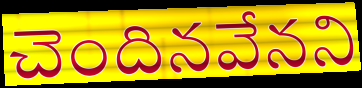
చెందినవేనని